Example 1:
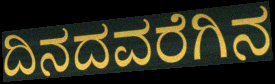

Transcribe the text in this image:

ದಿನದವರೆಗಿನ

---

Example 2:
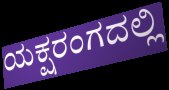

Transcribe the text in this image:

ಯಕ್ಷರಂಗದಲ್ಲಿ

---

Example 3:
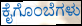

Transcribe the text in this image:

ಕೈಗೊಂಬೆಗಳು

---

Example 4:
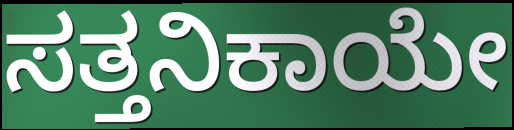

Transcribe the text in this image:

ಸತ್ತನಿಕಾಯೇ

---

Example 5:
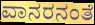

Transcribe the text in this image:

ವಾನರನಂತೆ